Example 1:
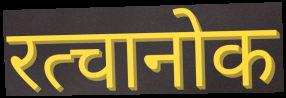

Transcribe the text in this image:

रत्चानोक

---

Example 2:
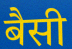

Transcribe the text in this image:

बैसी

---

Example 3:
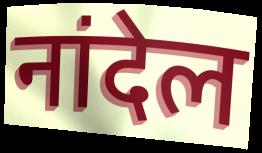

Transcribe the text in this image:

नांदेल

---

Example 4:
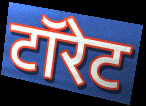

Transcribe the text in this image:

टॉरेट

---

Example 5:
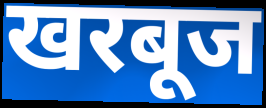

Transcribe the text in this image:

खरबूज